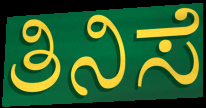
ತಿನಿಸೆ